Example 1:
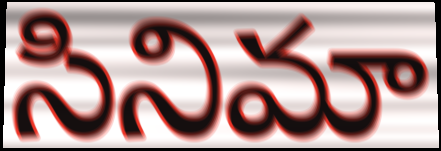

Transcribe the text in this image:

సినిమా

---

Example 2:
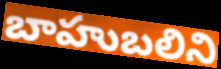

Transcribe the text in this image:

బాహుబలిని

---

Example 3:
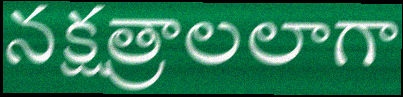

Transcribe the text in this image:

నక్షత్రాలలాగా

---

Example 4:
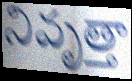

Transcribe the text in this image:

నివృత్తా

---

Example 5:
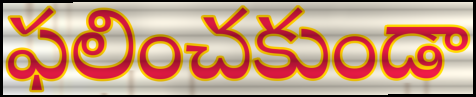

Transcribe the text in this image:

ఫలించకుండా